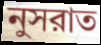
নুসরাত